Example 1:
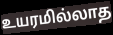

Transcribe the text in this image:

உயரமில்லாத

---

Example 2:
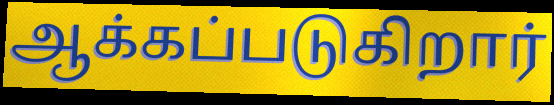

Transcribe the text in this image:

ஆக்கப்படுகிறார்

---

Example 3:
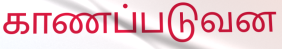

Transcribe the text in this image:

காணப்படுவன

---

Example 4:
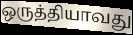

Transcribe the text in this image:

ஒருத்தியாவது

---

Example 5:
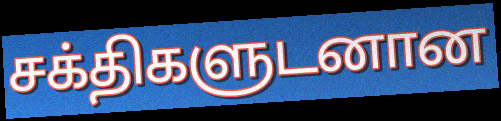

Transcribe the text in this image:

சக்திகளுடனான